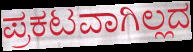
ಪ್ರಕಟವಾಗಿಲ್ಲದ